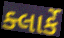
ક્લાર્કે